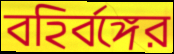
বহির্বঙ্গের